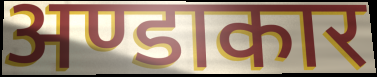
अण्डाकार